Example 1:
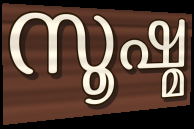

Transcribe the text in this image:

സൂഷ്മ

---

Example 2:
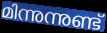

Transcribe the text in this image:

മിന്നുന്നുണ്ട്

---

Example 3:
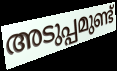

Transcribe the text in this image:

അടുപ്പമുണ്ട്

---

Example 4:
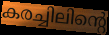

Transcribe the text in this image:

കരച്ചിലിന്റെ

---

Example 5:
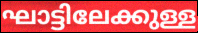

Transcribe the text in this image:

ഘാട്ടിലേക്കുള്ള